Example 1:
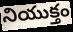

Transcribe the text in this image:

నియుక్తం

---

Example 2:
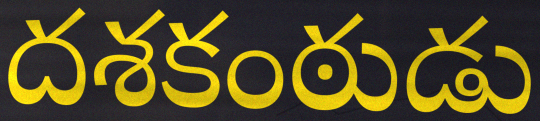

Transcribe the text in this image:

దశకంఠుడు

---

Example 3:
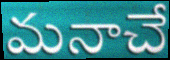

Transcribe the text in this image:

మనాచే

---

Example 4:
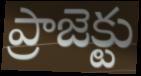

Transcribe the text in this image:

ప్రాజెక్టు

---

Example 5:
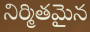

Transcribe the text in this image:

నిర్మితమైన